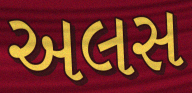
અલસ